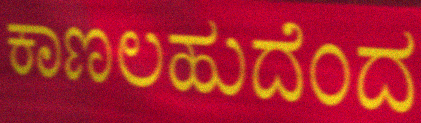
ಕಾಣಲಹುದೆಂದ